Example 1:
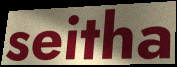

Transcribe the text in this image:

seitha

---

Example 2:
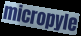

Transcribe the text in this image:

micropyle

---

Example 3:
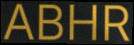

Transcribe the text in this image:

ABHR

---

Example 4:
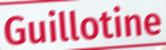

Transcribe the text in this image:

Guillotine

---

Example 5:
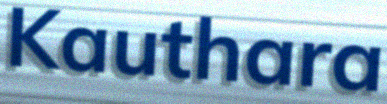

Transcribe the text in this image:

Kauthara